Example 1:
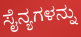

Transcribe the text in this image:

ಸೈನ್ಯಗಳನ್ನು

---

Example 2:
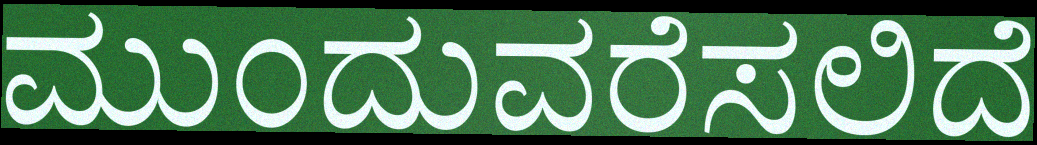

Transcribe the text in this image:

ಮುಂದುವರೆಸಲಿದೆ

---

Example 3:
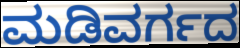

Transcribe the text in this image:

ಮಡಿವರ್ಗದ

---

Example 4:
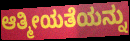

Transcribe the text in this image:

ಆತ್ಮೀಯತೆಯನ್ನು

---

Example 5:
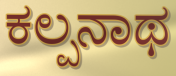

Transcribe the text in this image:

ಕಲ್ಪನಾಥ